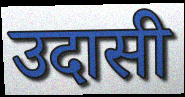
उदासी